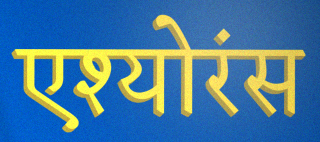
एश्योरंस